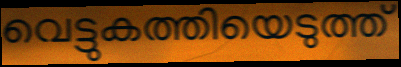
വെട്ടുകത്തിയെടുത്ത്